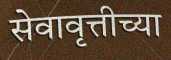
सेवावृत्तीच्या